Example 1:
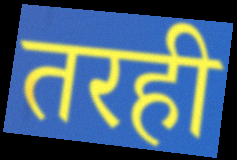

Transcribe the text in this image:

तरही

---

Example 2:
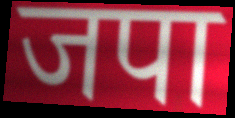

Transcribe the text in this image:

जपा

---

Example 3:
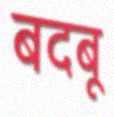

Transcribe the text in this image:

बदबू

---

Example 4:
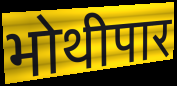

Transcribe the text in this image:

भोथीपार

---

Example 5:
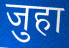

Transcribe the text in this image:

जुहा